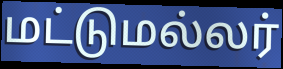
மட்டுமல்லர்